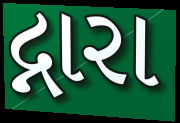
દ્નારા